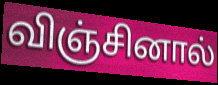
விஞ்சினால்